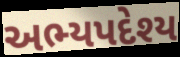
અભ્યપદેશ્ય